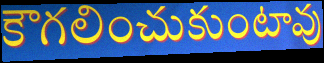
కౌగలించుకుంటావు